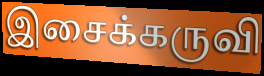
இசைக்கருவி